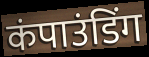
कंपाउंडिंग